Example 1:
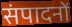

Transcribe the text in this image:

संपादनों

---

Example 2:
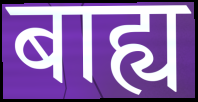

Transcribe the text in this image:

बाह्य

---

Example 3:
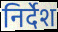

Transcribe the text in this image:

निर्देश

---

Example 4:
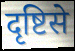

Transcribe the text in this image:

दृष्टिसे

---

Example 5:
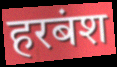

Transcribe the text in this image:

हरबंश